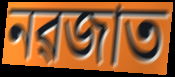
নৱজাত